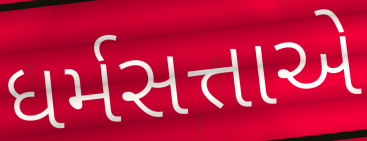
ધર્મસત્તાએ